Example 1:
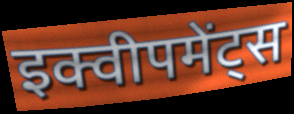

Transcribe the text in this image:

इक्वीपमेंट्स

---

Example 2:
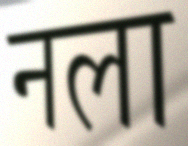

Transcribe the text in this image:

नला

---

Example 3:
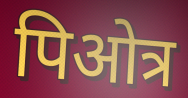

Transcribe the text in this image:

पिओत्र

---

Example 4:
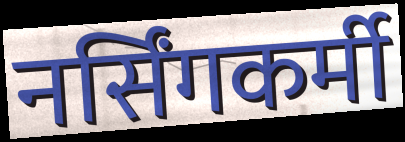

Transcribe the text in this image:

नर्सिंगकर्मी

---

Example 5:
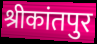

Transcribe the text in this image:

श्रीकांतपुर